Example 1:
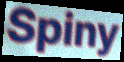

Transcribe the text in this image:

Spiny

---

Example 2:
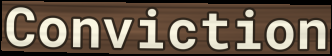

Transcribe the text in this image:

Conviction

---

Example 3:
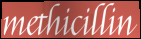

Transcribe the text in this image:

methicillin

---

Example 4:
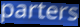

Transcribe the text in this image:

parters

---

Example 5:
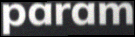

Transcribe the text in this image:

param